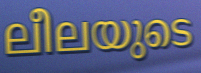
ലീലയുടെ